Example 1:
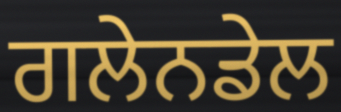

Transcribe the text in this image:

ਗਲੇਨਡੇਲ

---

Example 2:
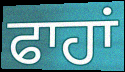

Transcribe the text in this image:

ਫਾਹਾਂ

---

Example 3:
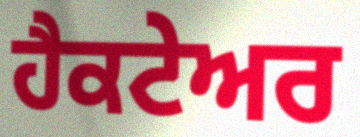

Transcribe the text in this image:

ਹੈਕਟੇਅਰ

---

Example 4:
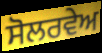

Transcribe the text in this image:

ਸੋਲਰਵੇਅ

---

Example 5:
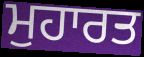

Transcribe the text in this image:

ਮੁਹਾਰਤ